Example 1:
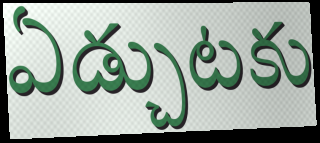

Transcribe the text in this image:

ఏడ్చుటకు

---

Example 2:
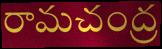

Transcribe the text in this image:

రామచంద్ర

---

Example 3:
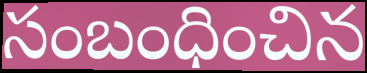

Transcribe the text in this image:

సంబంధించిన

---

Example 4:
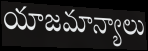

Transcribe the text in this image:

యాజమాన్యాలు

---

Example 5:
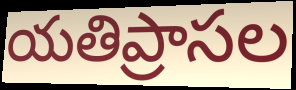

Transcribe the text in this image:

యతిప్రాసల